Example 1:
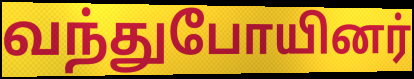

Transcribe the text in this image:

வந்துபோயினர்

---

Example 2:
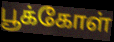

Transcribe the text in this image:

பூக்கோள்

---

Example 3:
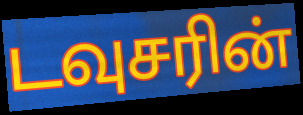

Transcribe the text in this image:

டவுசரின்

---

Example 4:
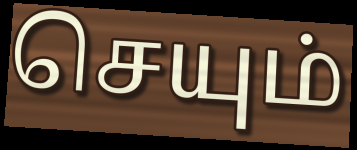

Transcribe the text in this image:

செயும்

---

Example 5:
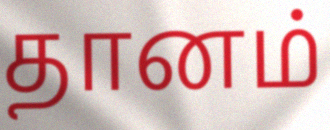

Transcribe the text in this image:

தானம்